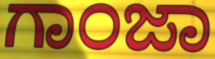
ಗಾಂಜಾ